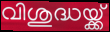
വിശുദ്ധയ്ക്ക്